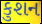
કુશન